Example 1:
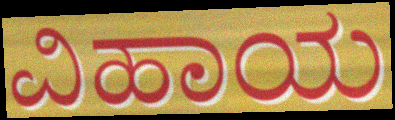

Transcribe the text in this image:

ವಿಹಾಯ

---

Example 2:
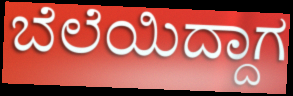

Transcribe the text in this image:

ಬೆಲೆಯಿದ್ದಾಗ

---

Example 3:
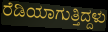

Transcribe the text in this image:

ರೆಡಿಯಾಗುತ್ತಿದ್ದಳು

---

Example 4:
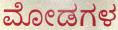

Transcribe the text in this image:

ಮೋಡಗಳ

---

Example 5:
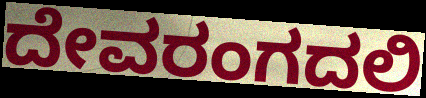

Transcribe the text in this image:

ದೇವರಂಗದಲಿ